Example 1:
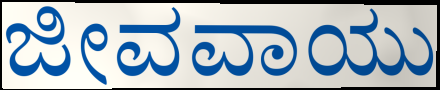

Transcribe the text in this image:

ಜೀವವಾಯು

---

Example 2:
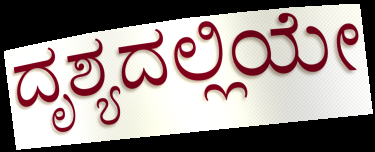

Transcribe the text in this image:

ದೃಶ್ಯದಲ್ಲಿಯೇ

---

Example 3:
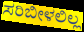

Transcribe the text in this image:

ಸರಿಬೀಳಲಿಲ್ಲ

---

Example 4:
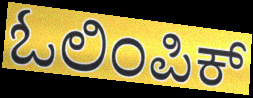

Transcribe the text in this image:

ಓಲಿಂಪಿಕ್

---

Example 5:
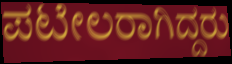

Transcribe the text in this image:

ಪಟೇಲರಾಗಿದ್ದರು